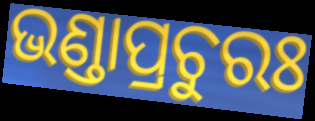
ଭଣ୍ଡାପ୍ରଚୁରଃ